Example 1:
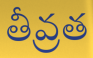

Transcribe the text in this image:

తీవ్రత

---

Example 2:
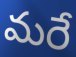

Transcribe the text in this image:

మరే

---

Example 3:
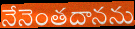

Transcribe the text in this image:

నేనెంతదానను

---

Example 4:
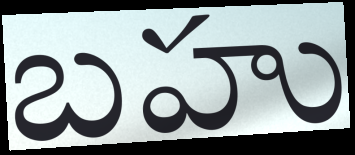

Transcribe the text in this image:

బహు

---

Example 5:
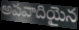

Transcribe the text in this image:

అపవాదియైన